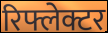
रिफ्लेक्टर